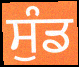
ਸੁੰਡ